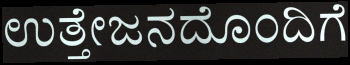
ಉತ್ತೇಜನದೊಂದಿಗೆ